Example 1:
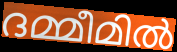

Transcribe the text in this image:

ദമ്മീമിൽ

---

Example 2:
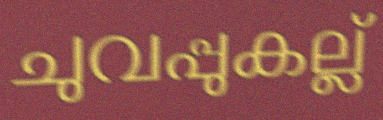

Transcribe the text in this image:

ചുവപ്പുകല്ല്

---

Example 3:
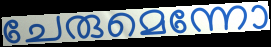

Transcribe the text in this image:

ചേരുമെന്നോ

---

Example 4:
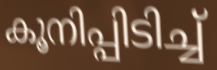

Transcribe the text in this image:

കൂനിപ്പിടിച്ച്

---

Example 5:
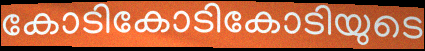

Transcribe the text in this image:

കോടികോടികോടിയുടെ